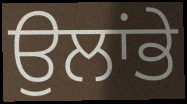
ਉਲਾਂਭੇ